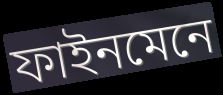
ফাইনমেনে